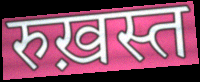
रुख़स्त